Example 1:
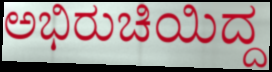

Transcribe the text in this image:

ಅಭಿರುಚಿಯಿದ್ದ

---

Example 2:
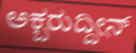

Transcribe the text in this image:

ಅಕ್ಬರುದ್ದೀನ್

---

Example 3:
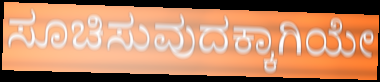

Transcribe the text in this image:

ಸೂಚಿಸುವುದಕ್ಕಾಗಿಯೇ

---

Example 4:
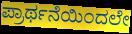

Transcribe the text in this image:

ಪ್ರಾರ್ಥನೆಯಿಂದಲೇ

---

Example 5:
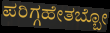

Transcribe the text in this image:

ಪರಿಗ್ಗಹೇತಬ್ಬೋ